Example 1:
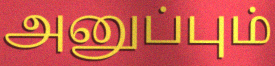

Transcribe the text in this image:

அனுப்பும்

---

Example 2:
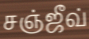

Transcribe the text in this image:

சஞ்ஜீவ்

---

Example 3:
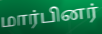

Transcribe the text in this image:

மார்பினர்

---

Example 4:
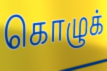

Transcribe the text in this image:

கொழுக்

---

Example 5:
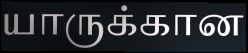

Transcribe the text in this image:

யாருக்கான